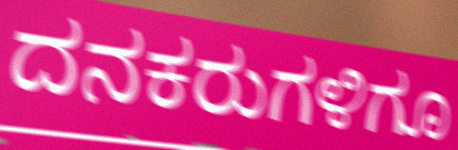
ದನಕರುಗಳಿಗೂ